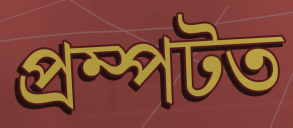
প্ৰম্পটত